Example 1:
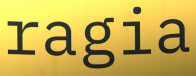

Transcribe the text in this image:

ragia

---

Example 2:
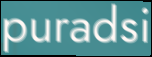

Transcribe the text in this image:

puradsi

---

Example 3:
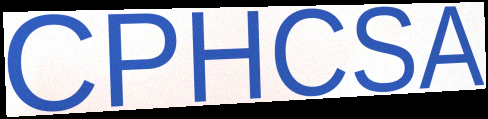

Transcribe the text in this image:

CPHCSA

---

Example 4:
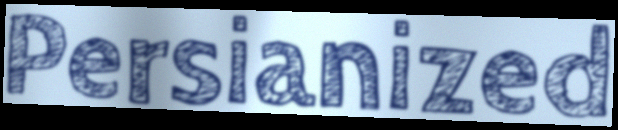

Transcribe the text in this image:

Persianized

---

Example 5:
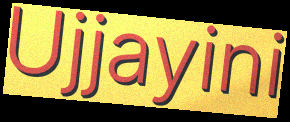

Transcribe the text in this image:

Ujjayini